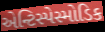
એન્ટિસ્પેસ્મોડિક